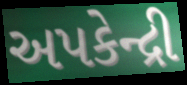
અપકેન્દ્રી